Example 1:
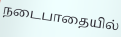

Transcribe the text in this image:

நடைபாதையில்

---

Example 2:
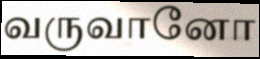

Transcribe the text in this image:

வருவானோ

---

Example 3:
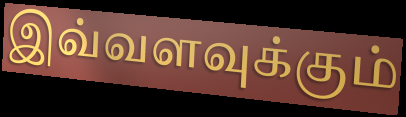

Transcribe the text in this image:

இவ்வளவுக்கும்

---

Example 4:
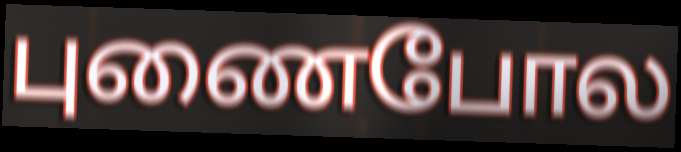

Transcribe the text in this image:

புணைபோல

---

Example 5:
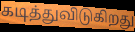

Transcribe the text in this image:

கடித்துவிடுகிறது